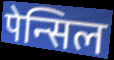
पेन्सिल